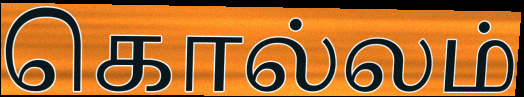
கொல்லம்